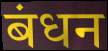
बंधन